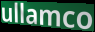
ullamco